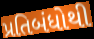
પ્રતિબંધોથી